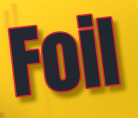
Foil